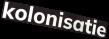
kolonisatie